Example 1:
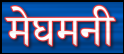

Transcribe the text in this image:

मेघमनी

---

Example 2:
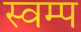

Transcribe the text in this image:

स्वम्प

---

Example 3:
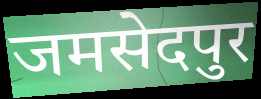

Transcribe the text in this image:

जमसेदपुर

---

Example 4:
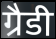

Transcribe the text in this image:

ग्रैडी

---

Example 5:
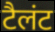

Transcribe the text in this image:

टैलंट